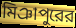
মিঞাপুরের